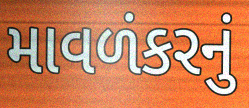
માવળંકરનું